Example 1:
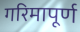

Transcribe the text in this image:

गरिमापूर्ण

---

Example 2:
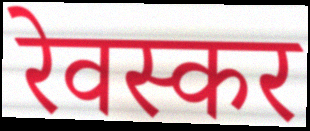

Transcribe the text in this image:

रेवस्कर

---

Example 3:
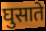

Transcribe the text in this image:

घुसाते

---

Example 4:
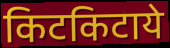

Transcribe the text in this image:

किटकिटाये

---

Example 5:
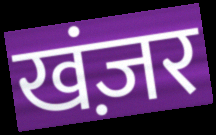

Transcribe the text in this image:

खंज़र